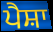
ਪੈਸ਼ਾ